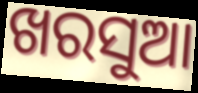
ଖରସୁଆ